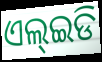
ଏଲ୍ଇଡି